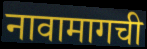
नावामागची